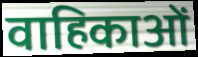
वाहिकाओं